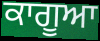
ਕਾਗੂਆ